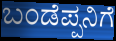
ಬಂಡೆಪ್ಪನಿಗೆ